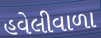
હવેલીવાળા